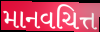
માનવચિત્ત